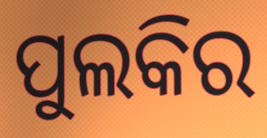
ପୁଲକିର